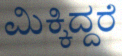
ಮಿಕ್ಕಿದ್ದರೆ